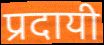
प्रदायी